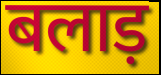
बलाड़